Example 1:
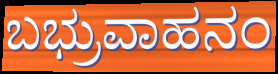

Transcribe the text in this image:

ಬಭ್ರುವಾಹನಂ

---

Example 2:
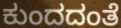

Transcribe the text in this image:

ಕುಂದದಂತೆ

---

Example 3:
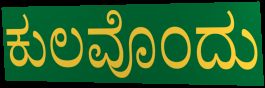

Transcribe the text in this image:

ಕುಲವೊಂದು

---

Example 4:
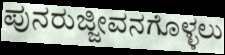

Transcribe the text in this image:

ಪುನರುಜ್ಜೀವನಗೊಳ್ಳಲು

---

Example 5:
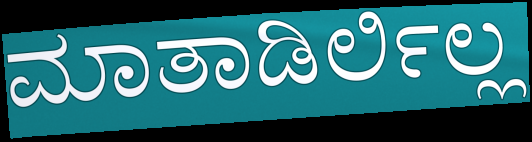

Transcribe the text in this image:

ಮಾತಾಡಿರ್ಲಿಲ್ಲ